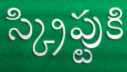
స్క్రిప్టుకి